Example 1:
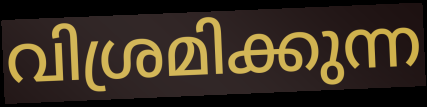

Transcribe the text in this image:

വിശ്രമിക്കുന്ന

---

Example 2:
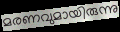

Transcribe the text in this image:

മരണവുമായിരുന്നു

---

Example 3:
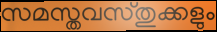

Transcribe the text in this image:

സമസ്തവസ്തുക്കളും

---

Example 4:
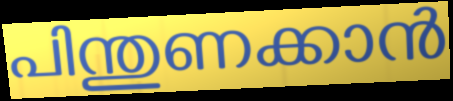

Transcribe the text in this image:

പിന്തുണക്കാൻ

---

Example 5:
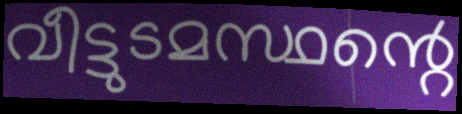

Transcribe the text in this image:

വീട്ടുടമസ്ഥന്റെ